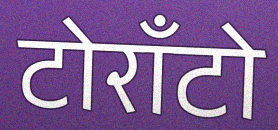
टोरॉंटो